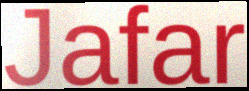
Jafar